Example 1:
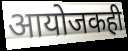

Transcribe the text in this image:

आयोजकही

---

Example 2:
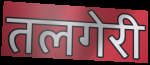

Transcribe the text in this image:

तलगेरी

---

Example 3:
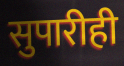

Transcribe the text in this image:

सुपारीही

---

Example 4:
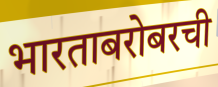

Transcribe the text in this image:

भारताबरोबरची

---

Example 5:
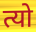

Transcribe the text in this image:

त्यो